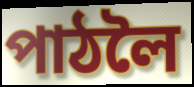
পাঠলৈ